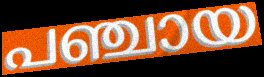
പഞ്ചായ